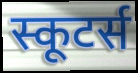
स्कूटर्स